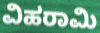
ವಿಹರಾಮಿ